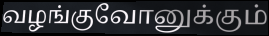
வழங்குவோனுக்கும்